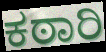
ಕಠಾರಿ